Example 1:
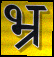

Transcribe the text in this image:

भ्र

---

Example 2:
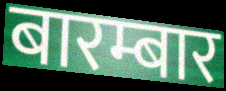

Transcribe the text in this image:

बारम्बार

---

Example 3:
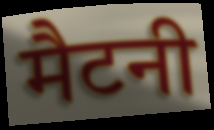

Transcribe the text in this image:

मैटनी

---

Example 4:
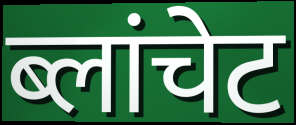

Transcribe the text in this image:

ब्लांचेट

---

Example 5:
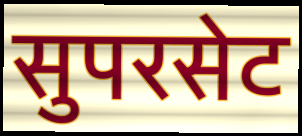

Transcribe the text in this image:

सुपरसेट